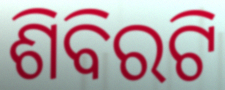
ଶିବିରଟି